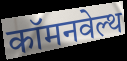
कॉमनवेल्थ